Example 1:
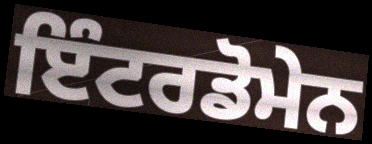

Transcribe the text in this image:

ਇੰਟਰਡੋਮੇਨ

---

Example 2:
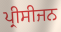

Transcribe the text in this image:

ਪ੍ਰੀਸੀਜਨ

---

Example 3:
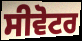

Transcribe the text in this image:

ਸੀਵੋਟਰ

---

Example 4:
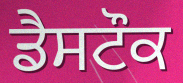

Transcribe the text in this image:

ਡੈਸਟੌਕ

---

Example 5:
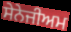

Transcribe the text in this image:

ਸੇਨੇਜੀਅਮ